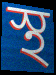
স্থ